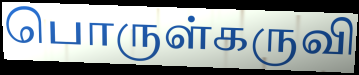
பொருள்கருவி